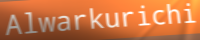
Alwarkurichi